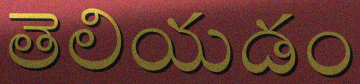
తెలియడం